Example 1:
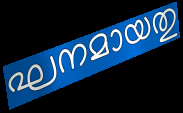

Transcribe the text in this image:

ഘനമായതു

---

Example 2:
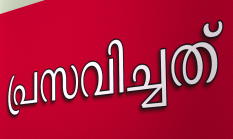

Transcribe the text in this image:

പ്രസവിച്ചത്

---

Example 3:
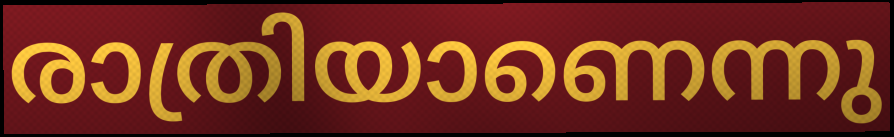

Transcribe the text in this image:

രാത്രിയാണെന്നു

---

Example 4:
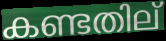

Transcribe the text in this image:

കണ്ടതില്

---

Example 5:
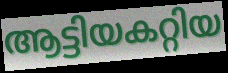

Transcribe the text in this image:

ആട്ടിയകറ്റിയ